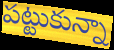
పట్టుకున్నా